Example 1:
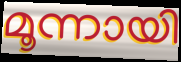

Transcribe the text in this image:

മൂന്നായി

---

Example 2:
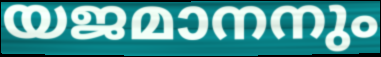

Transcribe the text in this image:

യജമാനനും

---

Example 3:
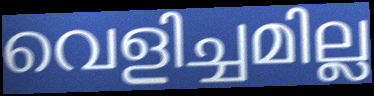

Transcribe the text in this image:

വെളിച്ചമില്ല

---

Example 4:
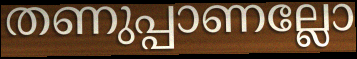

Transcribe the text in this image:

തണുപ്പാണല്ലോ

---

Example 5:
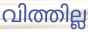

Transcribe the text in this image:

വിത്തില്ല